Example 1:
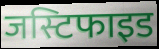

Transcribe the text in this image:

जस्टिफाइड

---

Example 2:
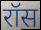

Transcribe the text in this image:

रॉस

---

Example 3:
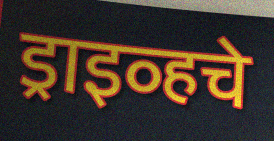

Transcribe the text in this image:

ड्राइव्हचे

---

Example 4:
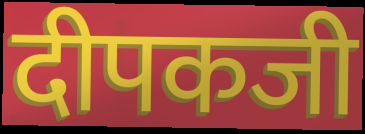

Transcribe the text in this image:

दीपकजी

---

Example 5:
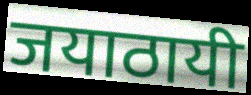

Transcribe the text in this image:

जयाठायी